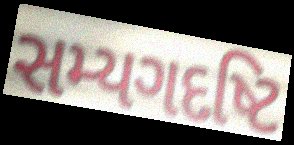
સમ્યગદષ્ટિ